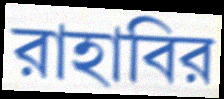
রাহাবির